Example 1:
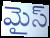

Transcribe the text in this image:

మైస్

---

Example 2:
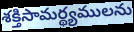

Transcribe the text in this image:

శక్తిసామర్థ్యములను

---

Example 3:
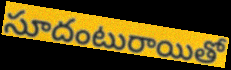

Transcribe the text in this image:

సూదంటురాయితో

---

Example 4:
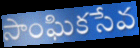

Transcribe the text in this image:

సాంఘికసేవ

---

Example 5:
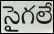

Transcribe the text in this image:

సైగలే